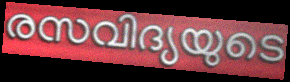
രസവിദ്യയുടെ